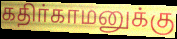
கதிர்காமனுக்கு